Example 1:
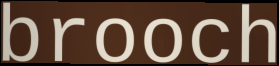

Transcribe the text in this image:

brooch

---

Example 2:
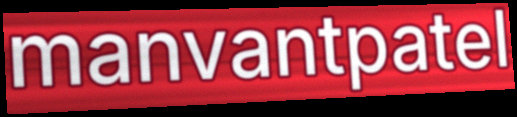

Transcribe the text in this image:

manvantpatel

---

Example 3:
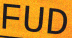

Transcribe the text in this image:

FUD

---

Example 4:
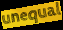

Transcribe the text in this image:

unequal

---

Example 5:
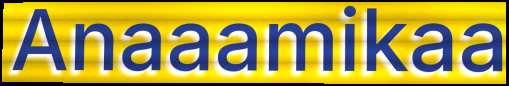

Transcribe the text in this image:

Anaaamikaa